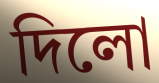
দিলো